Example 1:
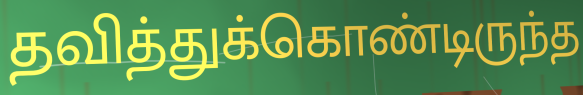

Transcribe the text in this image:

தவித்துக்கொண்டிருந்த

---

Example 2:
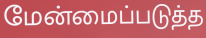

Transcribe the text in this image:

மேன்மைப்படுத்த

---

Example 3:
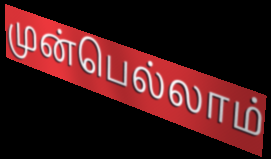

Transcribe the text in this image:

முன்பெல்லாம்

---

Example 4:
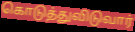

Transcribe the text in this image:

கொடுத்துவிடுவார்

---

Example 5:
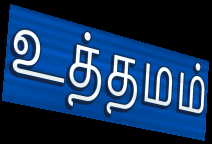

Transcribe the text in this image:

உத்தமம்